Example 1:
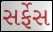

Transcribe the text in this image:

સર્ફેસ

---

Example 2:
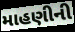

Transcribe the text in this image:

માહણીની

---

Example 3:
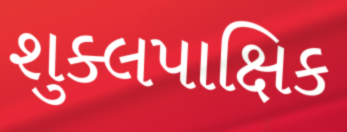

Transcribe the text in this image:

શુક્લપાક્ષિક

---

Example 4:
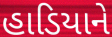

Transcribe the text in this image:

હાડિયાને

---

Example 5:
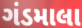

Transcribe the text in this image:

ગંડમાલા